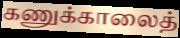
கணுக்காலைத்